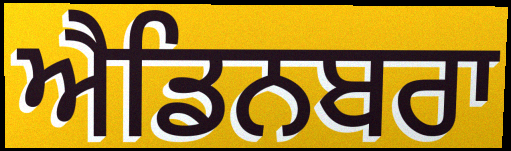
ਐਡਿਨਬਰਾ